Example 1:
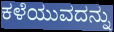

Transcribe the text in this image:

ಕಳೆಯುವದನ್ನು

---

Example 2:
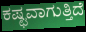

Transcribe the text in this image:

ಕಷ್ಟವಾಗುತ್ತಿದೆ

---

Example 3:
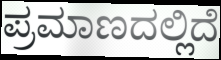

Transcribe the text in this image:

ಪ್ರಮಾಣದಲ್ಲಿದೆ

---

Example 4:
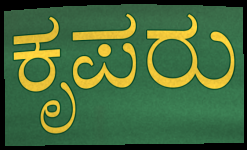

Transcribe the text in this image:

ಕೃಪರು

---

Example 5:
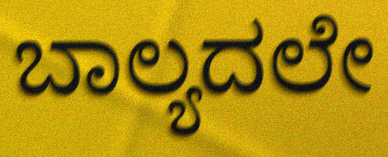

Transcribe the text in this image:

ಬಾಲ್ಯದಲೇ